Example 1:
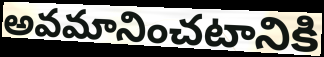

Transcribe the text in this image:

అవమానించటానికి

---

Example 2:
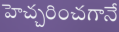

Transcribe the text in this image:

హెచ్చరించగానే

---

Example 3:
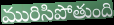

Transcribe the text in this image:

మురిసిపోతుంది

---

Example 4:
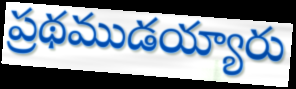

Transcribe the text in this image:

ప్రథముడయ్యారు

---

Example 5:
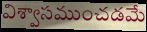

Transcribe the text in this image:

విశ్వాసముంచడమే